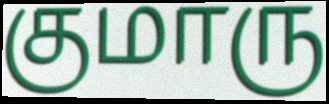
குமாரு